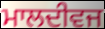
ਮਾਲਦੀਵਜ